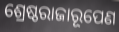
ଶ୍ରେଷ୍ଠରାଜାରୂପେଣ